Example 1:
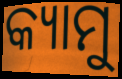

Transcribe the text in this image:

କ୍ୟାମୁ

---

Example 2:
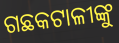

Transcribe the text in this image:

ଗଛକଟାଳୀଙ୍କୁ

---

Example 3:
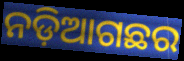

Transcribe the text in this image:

ନଡ଼ିଆଗଛର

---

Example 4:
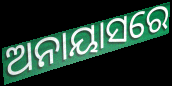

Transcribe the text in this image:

ଅନାୟାସରେ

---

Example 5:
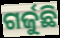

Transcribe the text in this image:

ଗର୍ଜୁଛି